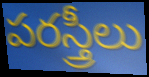
పరస్త్రీలు